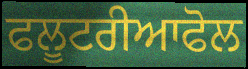
ਫਲੂਟਰੀਆਫੋਲ